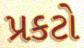
પ્રકટો